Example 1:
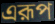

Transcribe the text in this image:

এরূপ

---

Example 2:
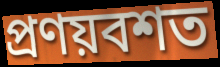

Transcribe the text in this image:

প্রণয়বশত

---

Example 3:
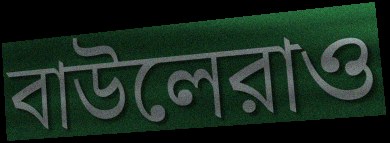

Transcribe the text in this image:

বাউলেরাও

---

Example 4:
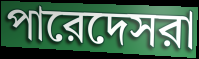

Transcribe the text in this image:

পারেদেসরা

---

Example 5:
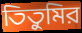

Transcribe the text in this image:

তিতুমির